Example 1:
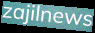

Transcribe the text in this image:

zajilnews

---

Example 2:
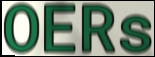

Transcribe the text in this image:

OERs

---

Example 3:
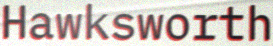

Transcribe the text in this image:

Hawksworth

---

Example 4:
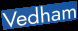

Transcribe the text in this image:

Vedham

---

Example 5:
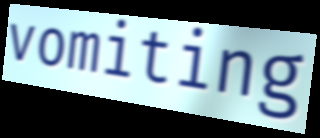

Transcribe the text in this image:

vomiting